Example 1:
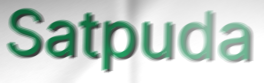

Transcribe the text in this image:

Satpuda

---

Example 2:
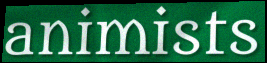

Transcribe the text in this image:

animists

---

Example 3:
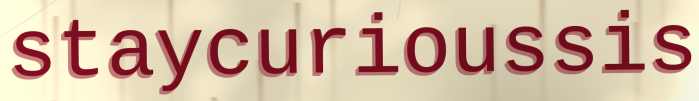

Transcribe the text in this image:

staycurioussis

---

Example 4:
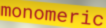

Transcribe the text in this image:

monomeric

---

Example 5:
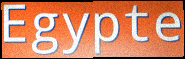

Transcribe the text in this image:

Egypte